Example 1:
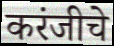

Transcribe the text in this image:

करंजीचे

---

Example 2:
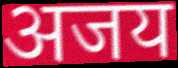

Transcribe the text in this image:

अजय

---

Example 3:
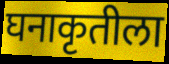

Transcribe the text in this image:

घनाकृतीला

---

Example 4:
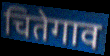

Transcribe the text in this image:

चितेगाव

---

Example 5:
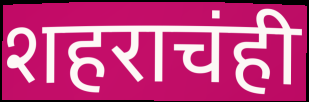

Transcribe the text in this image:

शहराचंही